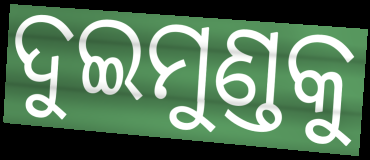
ଦୁଇମୁଣ୍ଡକୁ